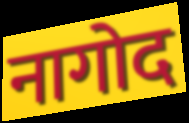
नागोद